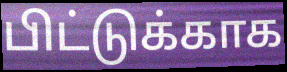
பிட்டுக்காக